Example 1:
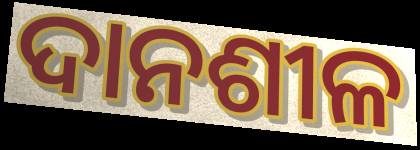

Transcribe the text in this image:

ଦାନଶୀଳ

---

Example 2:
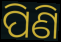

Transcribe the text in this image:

ପିଣି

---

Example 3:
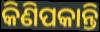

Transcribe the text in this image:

କିଣିପକାନ୍ତି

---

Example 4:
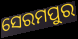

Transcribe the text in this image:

ସେରମପୁର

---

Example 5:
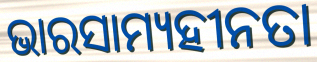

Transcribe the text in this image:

ଭାରସାମ୍ୟହୀନତା